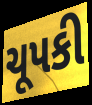
ચૂપકી